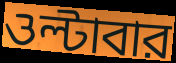
ওল্টাবার